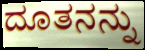
ದೂತನನ್ನು